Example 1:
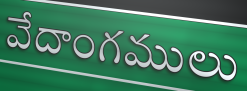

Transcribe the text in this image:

వేదాంగములు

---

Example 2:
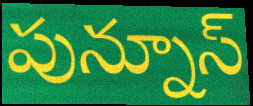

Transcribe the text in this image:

పున్నూస్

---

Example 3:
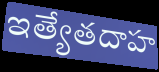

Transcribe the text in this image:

ఇత్యేతదాహ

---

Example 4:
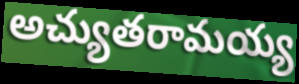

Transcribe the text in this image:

అచ్యుతరామయ్య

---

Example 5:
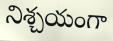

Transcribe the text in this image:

నిశ్చయంగా